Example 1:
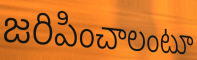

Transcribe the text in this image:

జరిపించాలంటూ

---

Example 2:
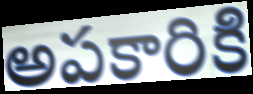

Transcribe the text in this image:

అపకారికి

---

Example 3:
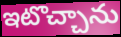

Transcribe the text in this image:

ఇటొచ్చాను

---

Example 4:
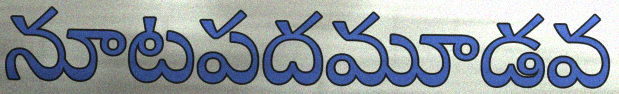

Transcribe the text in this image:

నూటపదమూడవ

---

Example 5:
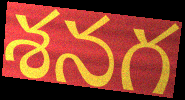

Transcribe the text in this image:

శనగ